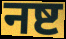
नष्ट